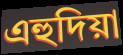
এহুদিয়া